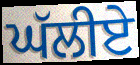
ਘੱਲੀਏ